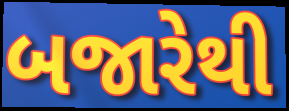
બજારેથી